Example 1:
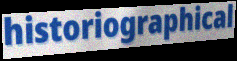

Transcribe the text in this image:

historiographical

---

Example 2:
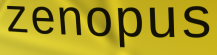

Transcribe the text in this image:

zenopus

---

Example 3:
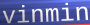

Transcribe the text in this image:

vinmin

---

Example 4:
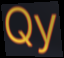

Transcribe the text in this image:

Qy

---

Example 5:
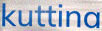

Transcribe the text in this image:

kuttina